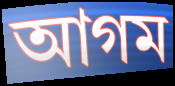
আগম